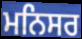
ਮਨਿਸਰ